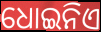
ଧୋଇନିଏ